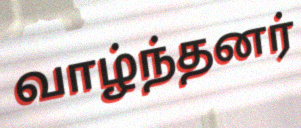
வாழ்ந்தனர்